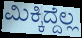
ಮಿಕ್ಕಿದ್ದೆಲ್ಲ